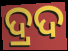
ଦ୍ରଦ